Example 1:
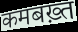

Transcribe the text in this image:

कमबख़्त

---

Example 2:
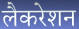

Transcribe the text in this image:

लैकरेशन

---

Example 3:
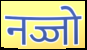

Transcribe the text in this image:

नज्जो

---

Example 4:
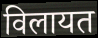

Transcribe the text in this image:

विलायत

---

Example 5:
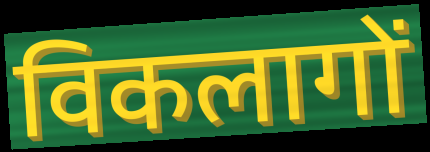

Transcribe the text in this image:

विकलागों